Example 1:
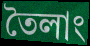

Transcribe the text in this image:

তৈলাং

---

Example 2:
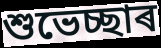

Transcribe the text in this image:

শুভেচ্ছাৰ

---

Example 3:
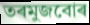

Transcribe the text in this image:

তৰমুজবোৰ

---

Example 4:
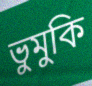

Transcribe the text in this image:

ভুমুকি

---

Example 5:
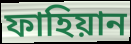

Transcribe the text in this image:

ফাহিয়ান